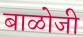
बाळोजी